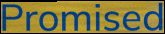
Promised